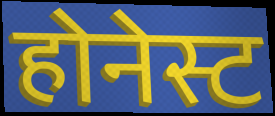
होनेस्ट